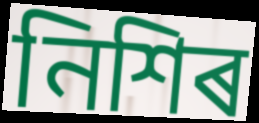
নিশিৰ